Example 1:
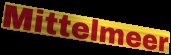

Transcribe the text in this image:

Mittelmeer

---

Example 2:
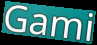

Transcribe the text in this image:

Gami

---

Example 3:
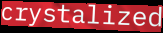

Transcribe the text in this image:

crystalized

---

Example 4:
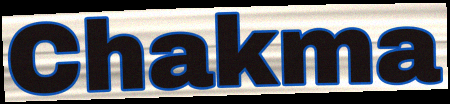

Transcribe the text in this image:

Chakma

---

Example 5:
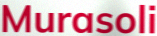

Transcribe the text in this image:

Murasoli